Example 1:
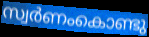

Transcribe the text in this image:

സ്വർണംകൊണ്ടു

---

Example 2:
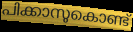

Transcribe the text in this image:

പിക്കാസുകൊണ്ട്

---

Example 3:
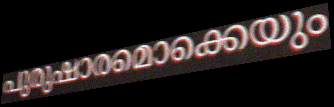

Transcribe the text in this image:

പുരുഷാരമൊക്കെയും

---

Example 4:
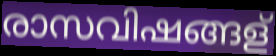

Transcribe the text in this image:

രാസവിഷങ്ങള്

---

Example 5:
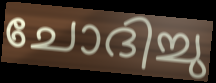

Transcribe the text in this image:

ചോദിച്ചു